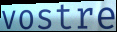
vostre